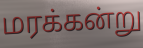
மரக்கன்று